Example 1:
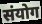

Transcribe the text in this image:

संयोग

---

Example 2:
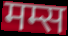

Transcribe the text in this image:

मम्स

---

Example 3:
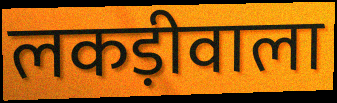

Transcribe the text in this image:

लकड़ीवाला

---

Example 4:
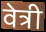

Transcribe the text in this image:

वेत्री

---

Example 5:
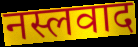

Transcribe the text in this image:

नस्लवाद